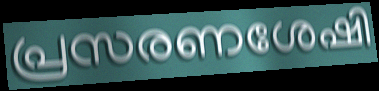
പ്രസരണശേഷി